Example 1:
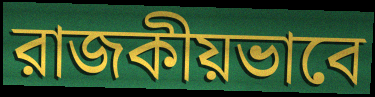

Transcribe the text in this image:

রাজকীয়ভাবে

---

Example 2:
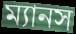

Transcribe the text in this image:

ম্যানস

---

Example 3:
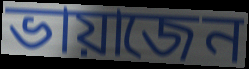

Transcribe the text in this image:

ভায়াজেন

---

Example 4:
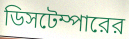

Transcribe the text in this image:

ডিসটেম্পারের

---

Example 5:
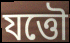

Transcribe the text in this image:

যত্তৌ